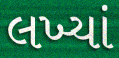
લખ્યાં